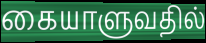
கையாளுவதில்